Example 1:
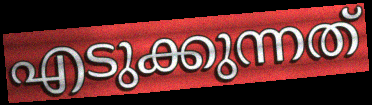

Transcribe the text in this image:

എടുക്കുന്നത്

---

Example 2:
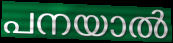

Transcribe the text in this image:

പനയാൽ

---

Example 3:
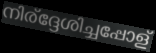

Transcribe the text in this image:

നിര്ദ്ദേശിച്ചപ്പോള്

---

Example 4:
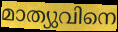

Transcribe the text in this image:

മാത്യുവിനെ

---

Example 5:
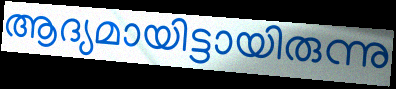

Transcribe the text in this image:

ആദ്യമായിട്ടായിരുന്നു